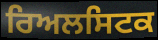
ਰਿਅਲਸਿਟਕ